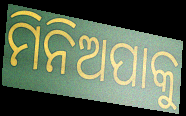
ମିନିଅପାକୁ